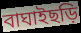
বাঘাইছড়ি